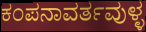
ಕಂಪನಾವರ್ತವುಳ್ಳ